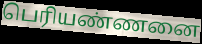
பெரியண்ணனை